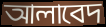
আলাবেদ